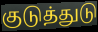
குடுத்துடு